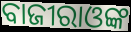
ବାଜୀରାଓଙ୍କ